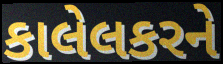
કાલેલકરને